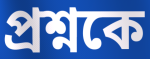
প্রশ্নকে